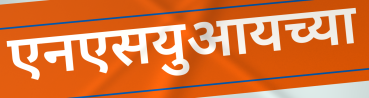
एनएसयुआयच्या